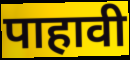
पाहावी